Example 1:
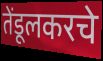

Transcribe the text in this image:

तेंडूलकरचे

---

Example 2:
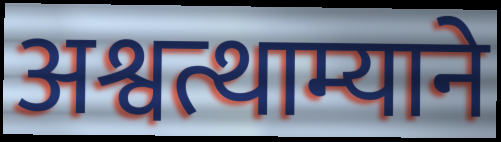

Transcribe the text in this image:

अश्वत्थाम्याने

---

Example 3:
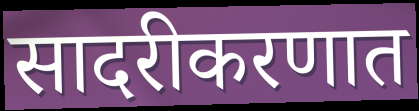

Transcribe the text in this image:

सादरीकरणात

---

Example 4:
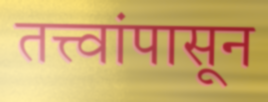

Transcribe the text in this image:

तत्त्वांपासून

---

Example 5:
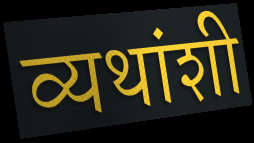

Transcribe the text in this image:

व्यथांशी